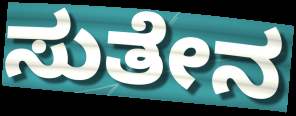
ಸುತೇನ